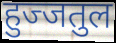
हुज्जतुल